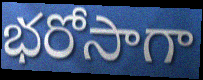
భరోసాగా